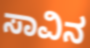
ಸಾವಿನ